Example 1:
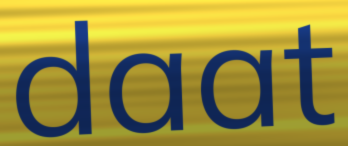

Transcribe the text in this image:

daat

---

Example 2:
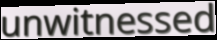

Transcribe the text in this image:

unwitnessed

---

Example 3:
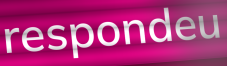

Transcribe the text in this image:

respondeu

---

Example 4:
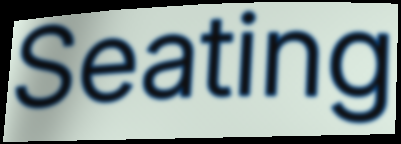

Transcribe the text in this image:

Seating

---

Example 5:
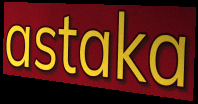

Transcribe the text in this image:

astaka